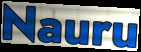
Nauru